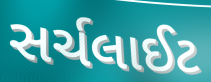
સર્ચલાઈટ